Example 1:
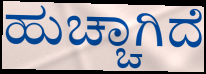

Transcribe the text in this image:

ಹುಚ್ಚಾಗಿದೆ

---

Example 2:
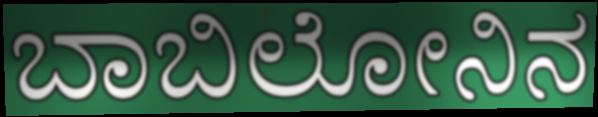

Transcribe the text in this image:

ಬಾಬಿಲೋನಿನ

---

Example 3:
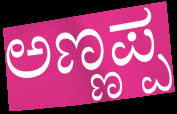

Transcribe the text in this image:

ಅಣ್ಣಪ್ಪ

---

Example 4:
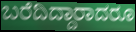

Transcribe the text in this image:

ಬರೆದಿದ್ದಾರಾದರೂ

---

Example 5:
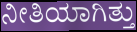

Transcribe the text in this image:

ನೀತಿಯಾಗಿತ್ತು